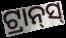
ଟ୍ରାନ୍‍ସ୍